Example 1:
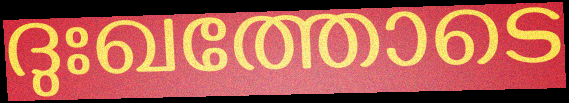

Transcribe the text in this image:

ദുഃഖത്തോടെ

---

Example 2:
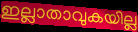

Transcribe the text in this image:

ഇല്ലാതാവുകയില്ല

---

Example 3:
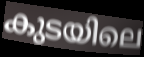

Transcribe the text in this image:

കുടയിലെ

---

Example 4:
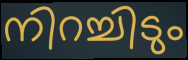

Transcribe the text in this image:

നിറച്ചിടും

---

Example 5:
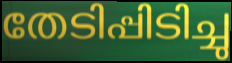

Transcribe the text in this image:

തേടിപ്പിടിച്ചു